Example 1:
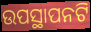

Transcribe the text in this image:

ଉପସ୍ଥାପନଟି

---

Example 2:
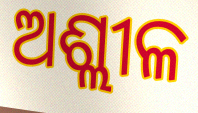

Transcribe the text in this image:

ଅଶ୍ଲୀଳ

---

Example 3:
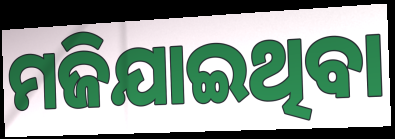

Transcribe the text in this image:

ମଜିଯାଇଥିବା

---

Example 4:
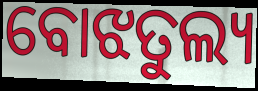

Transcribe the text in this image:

ବୋଝତୁଲ୍ୟ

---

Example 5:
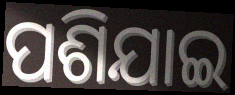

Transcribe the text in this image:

ପଶିଯାଇ